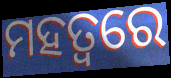
ମହତ୍ୱରେ